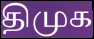
திமுக